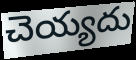
చెయ్యదు